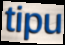
tipu